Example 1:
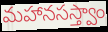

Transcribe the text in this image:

మహానసస్త్వాం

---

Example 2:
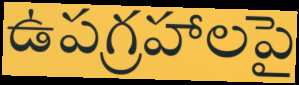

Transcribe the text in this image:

ఉపగ్రహాలపై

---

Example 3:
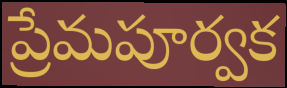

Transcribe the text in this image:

ప్రేమపూర్వక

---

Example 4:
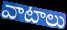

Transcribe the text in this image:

వాటాలు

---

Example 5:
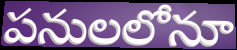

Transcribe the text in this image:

పనులలోనూ